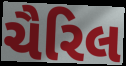
ચૈરિલ